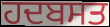
ਹਦਬਸਤ